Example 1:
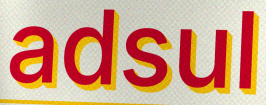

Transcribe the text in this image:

adsul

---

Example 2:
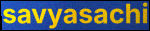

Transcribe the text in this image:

savyasachi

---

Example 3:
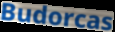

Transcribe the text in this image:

Budorcas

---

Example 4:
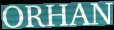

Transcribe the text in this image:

ORHAN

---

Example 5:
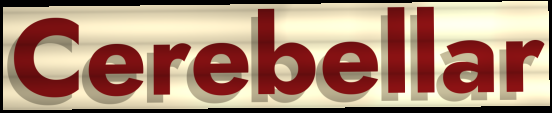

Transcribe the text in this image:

Cerebellar